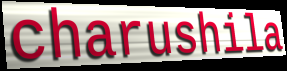
charushila